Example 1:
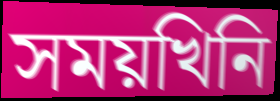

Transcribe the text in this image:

সময়খিনি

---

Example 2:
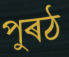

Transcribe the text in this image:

পুৰঠ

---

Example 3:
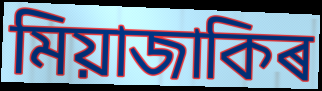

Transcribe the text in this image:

মিয়াজাকিৰ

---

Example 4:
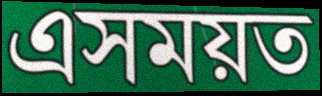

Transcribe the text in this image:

এসময়ত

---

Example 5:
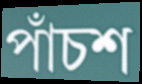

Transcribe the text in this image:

পাঁচশ